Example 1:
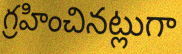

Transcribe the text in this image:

గ్రహించినట్లుగా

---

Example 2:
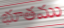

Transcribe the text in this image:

భూతము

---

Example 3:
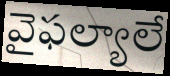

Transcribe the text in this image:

వైఫల్యాలే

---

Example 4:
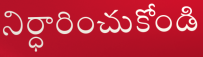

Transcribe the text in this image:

నిర్ధారించుకోండి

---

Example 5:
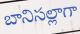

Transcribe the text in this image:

బానిసల్లాగా